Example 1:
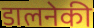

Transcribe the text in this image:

डालनेकी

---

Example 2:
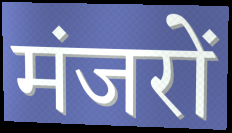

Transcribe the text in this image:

मंजरों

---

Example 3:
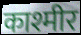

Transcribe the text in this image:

काश्मीर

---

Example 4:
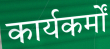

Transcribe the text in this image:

कार्यकर्मों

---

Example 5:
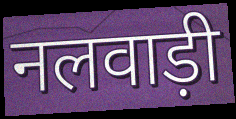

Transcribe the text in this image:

नलवाड़ी